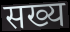
सख्य